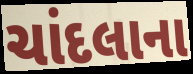
ચાંદલાના